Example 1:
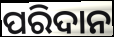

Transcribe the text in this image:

ପରିଦାନ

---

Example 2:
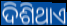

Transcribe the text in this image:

ଦିଶିଥାଏ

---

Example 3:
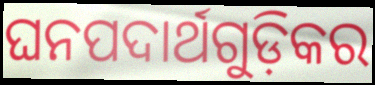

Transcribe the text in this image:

ଘନପଦାର୍ଥଗୁଡ଼ିକର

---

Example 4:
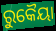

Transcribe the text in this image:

ରୁକୈୟା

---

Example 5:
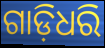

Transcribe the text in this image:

ଗାଡ଼ିଧରି